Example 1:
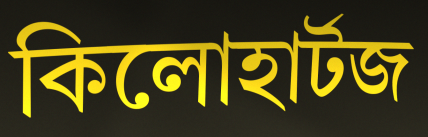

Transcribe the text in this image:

কিলোহার্টজ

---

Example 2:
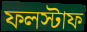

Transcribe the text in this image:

ফলস্টাফ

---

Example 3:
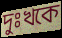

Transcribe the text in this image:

দুঃখকে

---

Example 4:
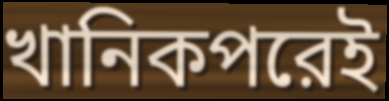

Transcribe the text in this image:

খানিকপরেই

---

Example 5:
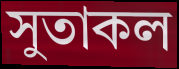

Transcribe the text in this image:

সুতাকল